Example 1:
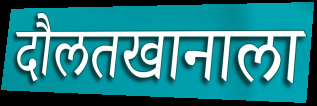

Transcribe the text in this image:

दौलतखानाला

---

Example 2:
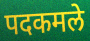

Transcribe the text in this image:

पदकमले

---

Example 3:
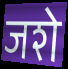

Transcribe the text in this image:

जशे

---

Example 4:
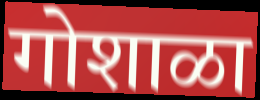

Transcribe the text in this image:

गोशाळा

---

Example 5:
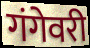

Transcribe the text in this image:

गंगेवरी